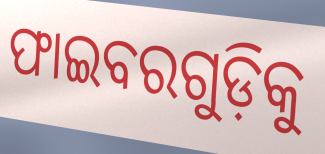
ଫାଇବରଗୁଡ଼ିକୁ